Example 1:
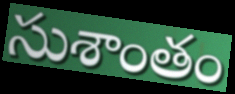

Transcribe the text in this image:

సుశాంతం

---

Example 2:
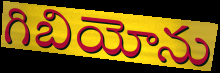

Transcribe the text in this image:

గిబియోను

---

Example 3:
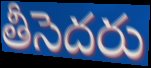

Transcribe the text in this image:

తీసెదరు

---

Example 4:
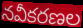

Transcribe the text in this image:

నవీకరణల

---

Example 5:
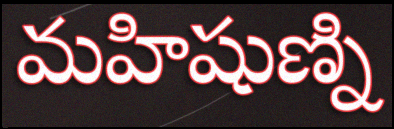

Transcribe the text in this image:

మహిషుణ్ని